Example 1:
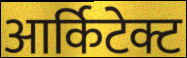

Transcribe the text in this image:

आर्किटेक्ट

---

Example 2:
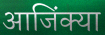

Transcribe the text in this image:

आजिंक्या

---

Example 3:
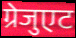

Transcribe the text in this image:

ग्रेजुएट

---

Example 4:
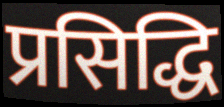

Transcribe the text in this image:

प्रसिद्धि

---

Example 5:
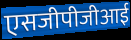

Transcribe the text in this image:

एसजीपीजीआई